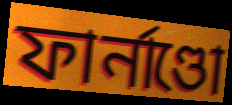
ফাৰ্নাণ্ডো